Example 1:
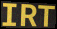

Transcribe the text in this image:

IRT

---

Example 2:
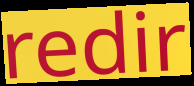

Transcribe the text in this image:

redir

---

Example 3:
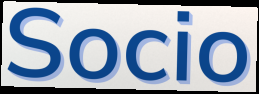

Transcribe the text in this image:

Socio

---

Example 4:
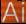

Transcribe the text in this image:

Ai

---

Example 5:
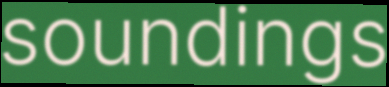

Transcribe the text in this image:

soundings